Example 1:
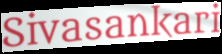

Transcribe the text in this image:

Sivasankari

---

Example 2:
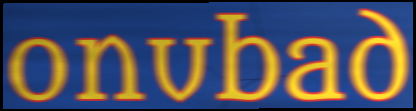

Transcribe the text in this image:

onubad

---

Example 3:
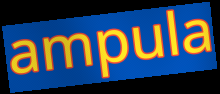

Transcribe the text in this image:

ampula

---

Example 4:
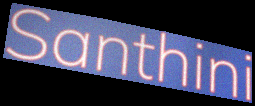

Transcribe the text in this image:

Santhini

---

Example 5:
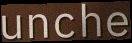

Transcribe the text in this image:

unche